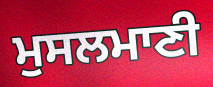
ਮੁਸਲਮਾਣੀ